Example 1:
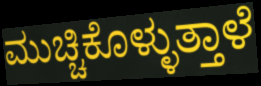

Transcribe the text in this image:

ಮುಚ್ಚಿಕೊಳ್ಳುತ್ತಾಳೆ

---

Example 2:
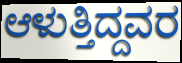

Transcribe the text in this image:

ಆಳುತ್ತಿದ್ದವರ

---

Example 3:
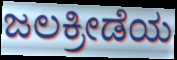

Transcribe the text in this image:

ಜಲಕ್ರೀಡೆಯ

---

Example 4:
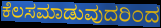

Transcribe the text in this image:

ಕೆಲಸಮಾಡುವುದರಿಂದ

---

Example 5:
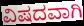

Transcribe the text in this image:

ವಿಷದವಾಗಿ